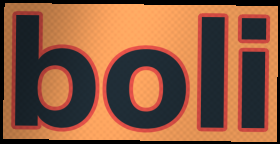
boli